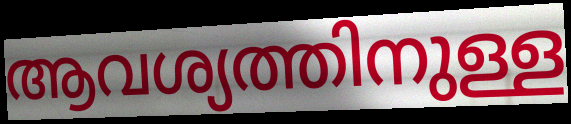
ആവശ്യത്തിനുള്ള